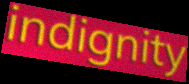
indignity